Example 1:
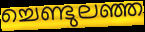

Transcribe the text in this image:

ച്ചെണ്ടുലഞ്ഞ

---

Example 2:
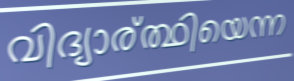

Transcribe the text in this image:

വിദ്യാര്ത്ഥിയെന്ന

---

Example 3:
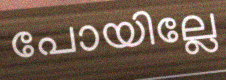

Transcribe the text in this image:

പോയില്ലേ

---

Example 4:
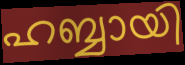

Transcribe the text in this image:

ഹബ്ബായി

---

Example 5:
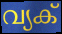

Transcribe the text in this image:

വ്യക്